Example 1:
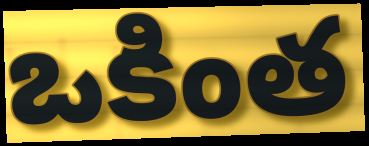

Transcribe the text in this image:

ఒకింత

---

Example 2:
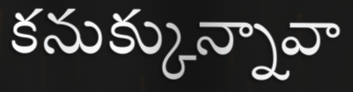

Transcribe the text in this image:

కనుక్కున్నావా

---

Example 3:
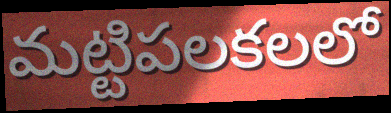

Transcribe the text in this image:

మట్టిపలకలలో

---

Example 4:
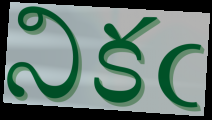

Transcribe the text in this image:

నికఁ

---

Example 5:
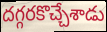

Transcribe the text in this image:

దగ్గరకొచ్చేశాడు